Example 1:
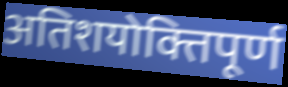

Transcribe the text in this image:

अतिशयोक्तिपूर्ण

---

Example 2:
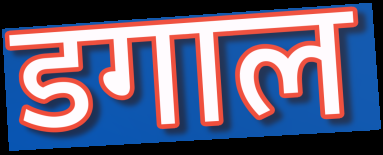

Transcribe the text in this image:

डगाल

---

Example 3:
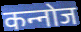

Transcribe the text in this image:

कन्नोज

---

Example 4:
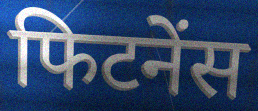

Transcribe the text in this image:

फिटनेंस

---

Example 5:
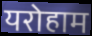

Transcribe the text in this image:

यरोहाम